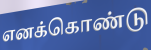
எனக்கொண்டு